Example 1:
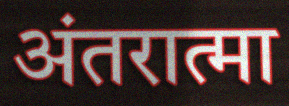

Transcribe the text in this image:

अंतरात्मा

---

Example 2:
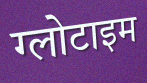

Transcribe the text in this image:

ग्लोटाइम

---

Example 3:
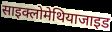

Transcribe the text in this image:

साइक्लोमेथियाजाइड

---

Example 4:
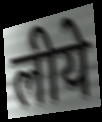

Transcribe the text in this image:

लीये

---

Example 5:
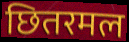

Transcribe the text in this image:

छितरमल